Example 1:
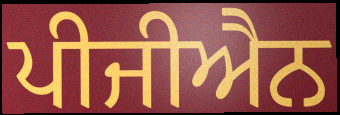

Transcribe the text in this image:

ਪੀਜੀਐਨ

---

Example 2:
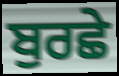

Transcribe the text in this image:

ਬੁਰਛੇ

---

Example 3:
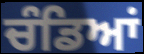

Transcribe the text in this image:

ਚੰਡਿਆਂ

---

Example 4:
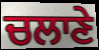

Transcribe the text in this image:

ਚਲਾਣੇ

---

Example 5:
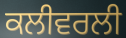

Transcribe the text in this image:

ਕਲੀਵਰਲੀ